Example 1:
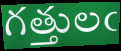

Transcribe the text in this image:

గత్తులఁ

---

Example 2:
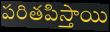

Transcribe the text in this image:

పరితపిస్తాయి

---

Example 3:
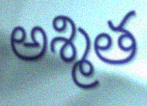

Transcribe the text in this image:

అశ్మిత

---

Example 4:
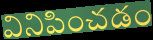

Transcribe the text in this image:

వినిపించడం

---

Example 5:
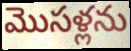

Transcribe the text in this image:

మొసళ్లను